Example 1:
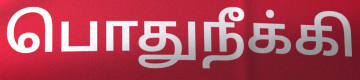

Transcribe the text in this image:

பொதுநீக்கி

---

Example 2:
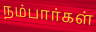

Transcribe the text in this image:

நம்பார்கள்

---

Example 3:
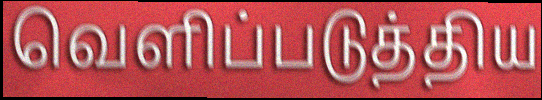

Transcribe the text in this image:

வெளிப்படுத்திய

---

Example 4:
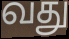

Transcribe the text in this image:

வது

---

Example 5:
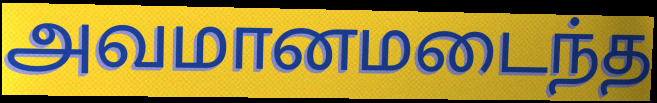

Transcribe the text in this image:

அவமானமடைந்த